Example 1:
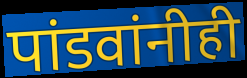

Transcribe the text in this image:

पांडवांनीही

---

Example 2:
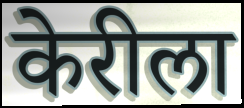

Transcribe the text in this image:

केरीला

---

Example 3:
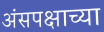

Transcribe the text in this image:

अंसपक्षाच्या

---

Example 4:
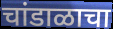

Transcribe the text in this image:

चांडाळाचा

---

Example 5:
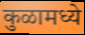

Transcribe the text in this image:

कुळामध्ये